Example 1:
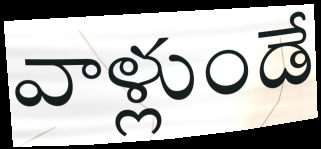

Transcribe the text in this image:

వాళ్లుండే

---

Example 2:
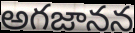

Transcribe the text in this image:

అగజానన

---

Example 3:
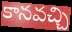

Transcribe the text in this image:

కానవచ్చి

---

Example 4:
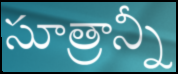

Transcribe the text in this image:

సూత్రాన్నీ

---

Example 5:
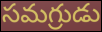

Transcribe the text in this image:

సమగ్రుడు